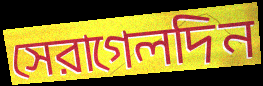
সেরাগেলদিন